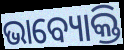
ଭାବ୍ୟୋକ୍ତି